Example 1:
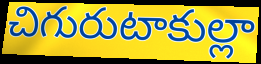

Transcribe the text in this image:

చిగురుటాకుల్లా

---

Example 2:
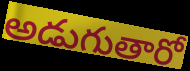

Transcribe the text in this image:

అడుగుతారో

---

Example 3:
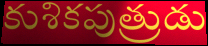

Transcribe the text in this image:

కుశికపుత్రుడు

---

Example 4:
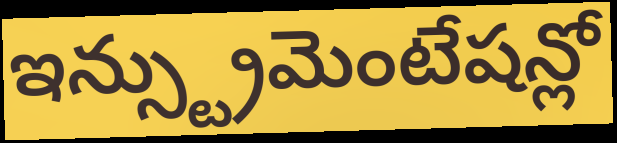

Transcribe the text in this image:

ఇన్స్ట్రుమెంటేషన్లో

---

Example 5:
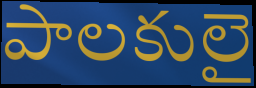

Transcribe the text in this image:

పాలకులై